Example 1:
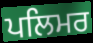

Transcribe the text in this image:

ਪਲਿਮਰ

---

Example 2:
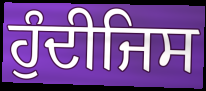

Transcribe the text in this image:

ਹੁੰਦੀਜਿਸ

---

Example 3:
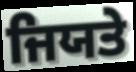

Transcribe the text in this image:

ਜਿਯਤੇ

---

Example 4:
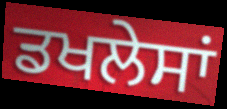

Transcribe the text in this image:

ਡਖਲੇਸਾਂ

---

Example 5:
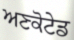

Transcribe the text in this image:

ਅਣਕੋਟੇਡ